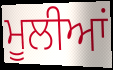
ਮੂਲੀਆਂ